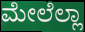
ಮೇಲೆಲ್ಲಾ